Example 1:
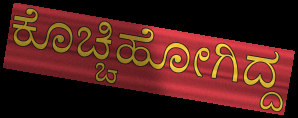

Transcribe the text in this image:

ಕೊಚ್ಚಿಹೋಗಿದ್ದ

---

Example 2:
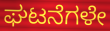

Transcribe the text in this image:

ಘಟನೆಗಳೇ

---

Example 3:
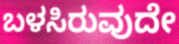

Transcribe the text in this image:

ಬಳಸಿರುವುದೇ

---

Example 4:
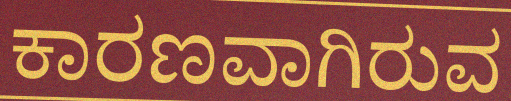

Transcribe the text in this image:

ಕಾರಣವಾಗಿರುವ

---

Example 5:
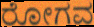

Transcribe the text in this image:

ರೋಗವ